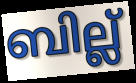
ബില്ല്